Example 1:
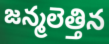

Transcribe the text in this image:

జన్మలెత్తిన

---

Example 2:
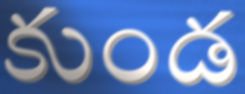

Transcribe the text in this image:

కుండ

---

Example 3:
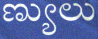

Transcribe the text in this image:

ణ్యులు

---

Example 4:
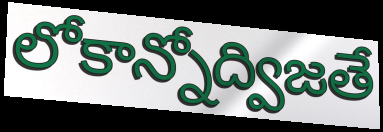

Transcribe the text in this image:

లోకాన్నోద్విజతే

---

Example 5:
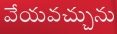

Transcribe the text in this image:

వేయవచ్చును